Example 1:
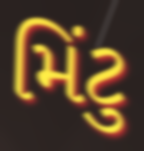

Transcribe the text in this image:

મિંટુ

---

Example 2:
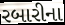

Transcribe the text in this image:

રબારીના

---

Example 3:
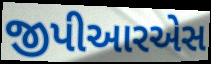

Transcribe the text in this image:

જીપીઆરએસ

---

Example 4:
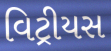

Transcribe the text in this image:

વિટ્રીયસ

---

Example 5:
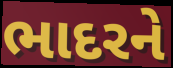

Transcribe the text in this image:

ભાદરને